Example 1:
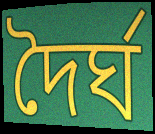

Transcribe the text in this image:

দৈৰ্ঘ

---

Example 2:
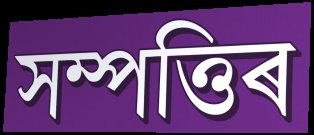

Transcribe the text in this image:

সম্পত্তিৰ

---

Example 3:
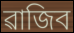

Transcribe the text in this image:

ৱাজিব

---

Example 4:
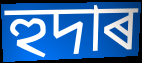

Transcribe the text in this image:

হুদাৰ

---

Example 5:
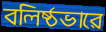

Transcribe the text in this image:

বলিষ্ঠভাৱে